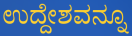
ಉದ್ದೇಶವನ್ನೂ